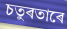
চতুৰতাৰে